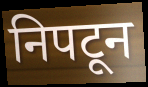
निपटून